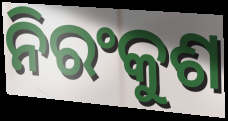
ନିରଂକୁଶ